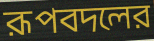
রূপবদলের